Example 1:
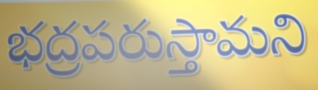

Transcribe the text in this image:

భద్రపరుస్తామని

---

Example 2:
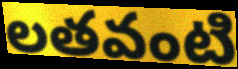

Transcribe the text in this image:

లతవంటి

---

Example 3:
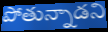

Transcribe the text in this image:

పోతున్నాడని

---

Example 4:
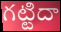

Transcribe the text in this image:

గట్టిదా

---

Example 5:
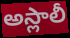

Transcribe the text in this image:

అస్లాలీ